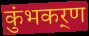
कुंभकर्ण